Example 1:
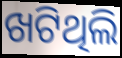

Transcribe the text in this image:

ଖଟିଥିଲି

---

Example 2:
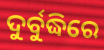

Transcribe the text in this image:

ଦୁର୍ବୁଦ୍ଧିରେ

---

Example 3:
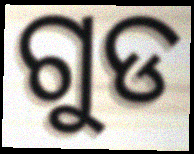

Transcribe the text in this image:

ଗୁଡ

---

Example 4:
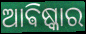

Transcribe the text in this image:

ଆଵିଷ୍କାର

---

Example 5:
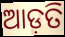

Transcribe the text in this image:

ଆଡ଼ତି